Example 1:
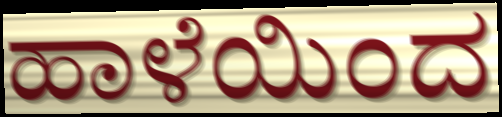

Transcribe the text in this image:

ಹಾಳೆಯಿಂದ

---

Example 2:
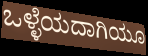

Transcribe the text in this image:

ಒಳ್ಳೆಯದಾಗಿಯೂ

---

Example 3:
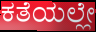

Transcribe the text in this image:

ಕತೆಯಲ್ಲೇ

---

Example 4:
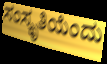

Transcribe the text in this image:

ಸಂಸ್ಕೃತಿಯೆಂದು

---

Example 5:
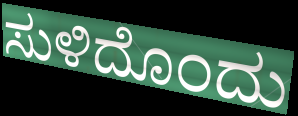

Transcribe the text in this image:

ಸುಳಿದೊಂದು